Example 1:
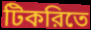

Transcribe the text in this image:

টিকরিতে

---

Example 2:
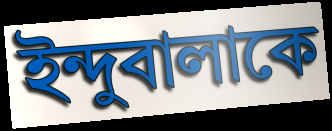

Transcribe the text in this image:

ইন্দুবালাকে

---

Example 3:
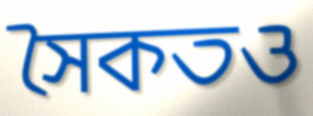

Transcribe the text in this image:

সৈকতও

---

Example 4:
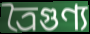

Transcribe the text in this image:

ত্রৈগুণ্য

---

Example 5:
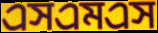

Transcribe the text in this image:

এসএমএস